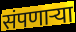
संपणाऱ्या